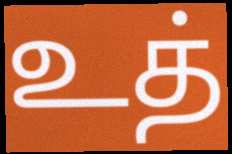
உத்